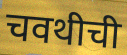
चवथीची